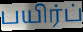
பயிர்ப்